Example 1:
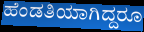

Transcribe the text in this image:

ಹೆಂಡತಿಯಾಗಿದ್ದರೂ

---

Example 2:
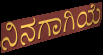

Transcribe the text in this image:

ನಿನಗಾಗಿಯೆ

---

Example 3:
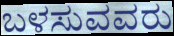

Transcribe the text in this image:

ಬಳಸುವವರು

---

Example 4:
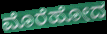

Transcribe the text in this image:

ಮೊರೆಹೋದ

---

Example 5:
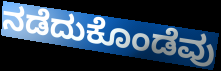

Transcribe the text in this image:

ನಡೆದುಕೊಂಡೆವು